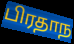
பிரதாந